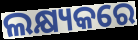
ଲକ୍ଷ୍ୟକରେ